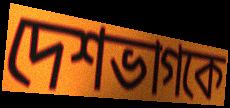
দেশভাগকে